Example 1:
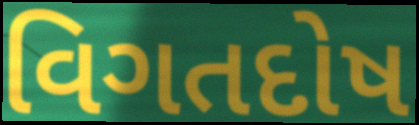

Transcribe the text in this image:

વિગતદોષ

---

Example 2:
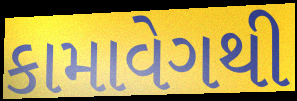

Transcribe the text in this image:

કામાવેગથી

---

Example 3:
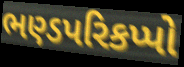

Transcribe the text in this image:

ભણ્ડપરિકપ્પો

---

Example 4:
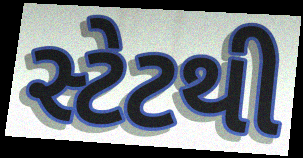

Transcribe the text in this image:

સ્ટેટથી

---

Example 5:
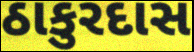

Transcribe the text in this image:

ઠાકુરદાસ